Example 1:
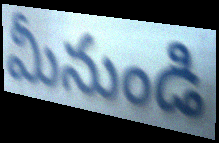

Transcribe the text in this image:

మీనుండి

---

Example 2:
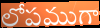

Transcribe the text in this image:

లోపముగా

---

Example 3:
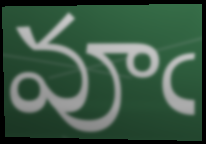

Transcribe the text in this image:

వూఁ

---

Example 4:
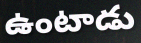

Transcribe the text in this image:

ఉంటాడు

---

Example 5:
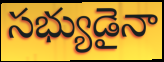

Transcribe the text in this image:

సభ్యుడైనా